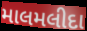
માલમલીદા